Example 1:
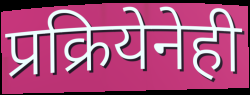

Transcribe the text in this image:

प्रक्रियेनेही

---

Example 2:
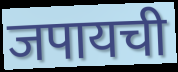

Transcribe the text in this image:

जपायची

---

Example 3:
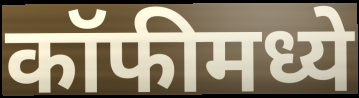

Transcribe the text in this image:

कॉफीमध्ये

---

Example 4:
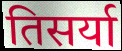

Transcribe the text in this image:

तिसर्या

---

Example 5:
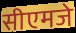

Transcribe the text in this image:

सीएमजे